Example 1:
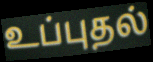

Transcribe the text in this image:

உப்புதல்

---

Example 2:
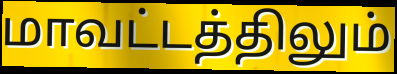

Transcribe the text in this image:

மாவட்டத்திலும்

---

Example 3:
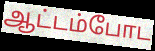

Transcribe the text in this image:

ஆட்டம்போட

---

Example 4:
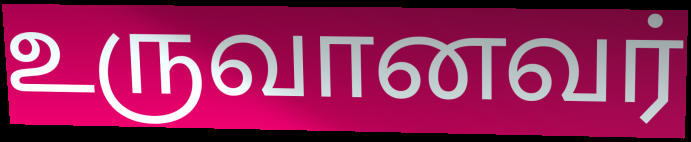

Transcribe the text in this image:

உருவானவர்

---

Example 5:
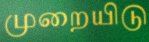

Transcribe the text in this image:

முறையிடு